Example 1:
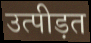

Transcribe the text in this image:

उत्पीड़त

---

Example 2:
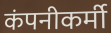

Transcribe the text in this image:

कंपनीकर्मी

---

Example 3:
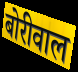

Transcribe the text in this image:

बोरीवाल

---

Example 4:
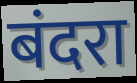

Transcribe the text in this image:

बंदरा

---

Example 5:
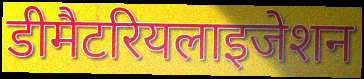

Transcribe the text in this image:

डीमैटरियलाइजेशन